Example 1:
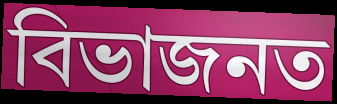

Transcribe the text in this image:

বিভাজনত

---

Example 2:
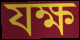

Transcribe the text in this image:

যক্ষ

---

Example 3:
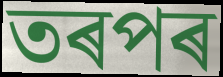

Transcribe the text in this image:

তৰপৰ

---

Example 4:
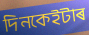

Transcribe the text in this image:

দিনকেইটাৰ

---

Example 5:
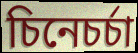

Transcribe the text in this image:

চিনেচৰ্চা